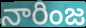
నారింజ